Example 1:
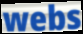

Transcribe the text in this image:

webs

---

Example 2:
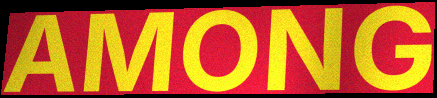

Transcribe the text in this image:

AMONG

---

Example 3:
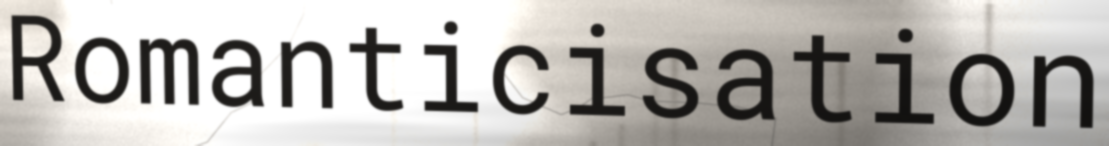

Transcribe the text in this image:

Romanticisation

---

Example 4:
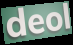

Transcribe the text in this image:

deol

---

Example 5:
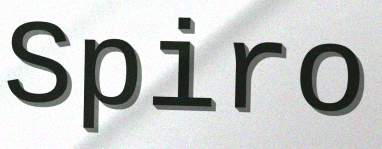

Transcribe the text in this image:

Spiro